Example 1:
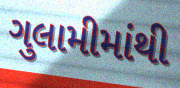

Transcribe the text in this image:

ગુલામીમાંથી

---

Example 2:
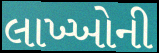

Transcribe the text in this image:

લાખ્ખોની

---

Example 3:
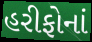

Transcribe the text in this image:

હરીફોનાં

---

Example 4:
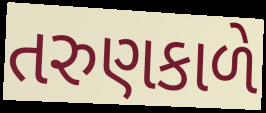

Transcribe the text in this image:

તરુણકાળે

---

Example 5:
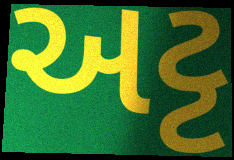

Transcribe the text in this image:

અટ્ટ